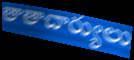
తాతాచార్యులు